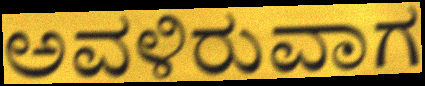
ಅವಳಿರುವಾಗ